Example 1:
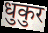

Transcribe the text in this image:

धुकुर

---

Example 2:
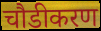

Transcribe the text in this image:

चौडीकरण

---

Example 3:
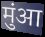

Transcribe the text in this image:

मुंआ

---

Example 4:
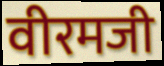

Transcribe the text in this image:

वीरमजी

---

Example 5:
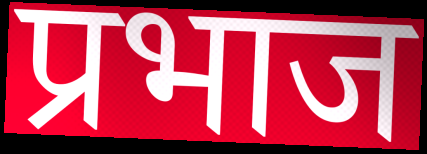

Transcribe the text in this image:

प्रभाज